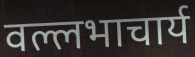
वल्लभाचार्य